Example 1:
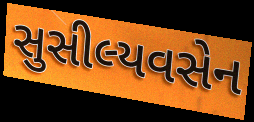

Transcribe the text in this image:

સુસીલ્યવસેન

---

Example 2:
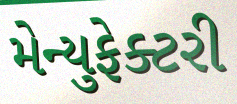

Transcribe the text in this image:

મેન્યુફેક્ટરી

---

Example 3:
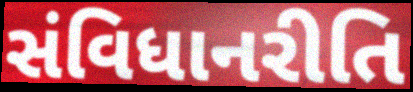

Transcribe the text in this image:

સંવિધાનરીતિ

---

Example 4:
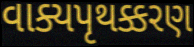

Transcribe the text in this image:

વાક્યપૃથક્કરણ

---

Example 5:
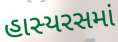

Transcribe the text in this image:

હાસ્યરસમાં